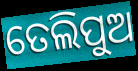
ତେଲିପୁଅ